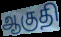
ஆகுதி